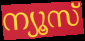
ന്യൂസ്